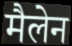
मैलेन